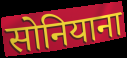
सोनियाना